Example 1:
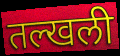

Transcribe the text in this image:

तल्खली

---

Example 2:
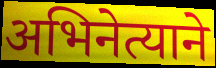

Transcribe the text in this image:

अभिनेत्याने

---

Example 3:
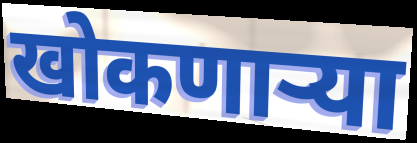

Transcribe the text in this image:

खोकणाऱ्या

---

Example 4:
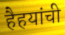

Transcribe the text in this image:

हैहयांची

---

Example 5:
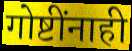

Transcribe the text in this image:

गोष्टींनाही